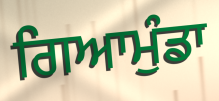
ਗਿਆਮੁੰਡਾ